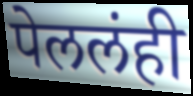
पेललंही